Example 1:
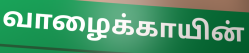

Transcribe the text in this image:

வாழைக்காயின்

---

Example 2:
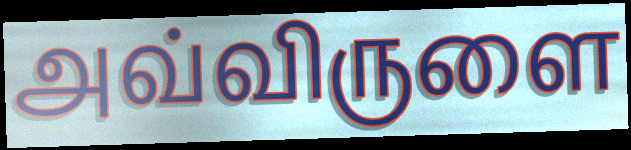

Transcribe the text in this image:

அவ்விருளை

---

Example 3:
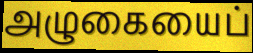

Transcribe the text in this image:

அழுகையைப்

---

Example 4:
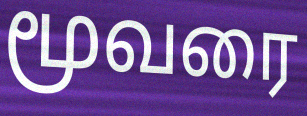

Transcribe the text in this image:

மூவரை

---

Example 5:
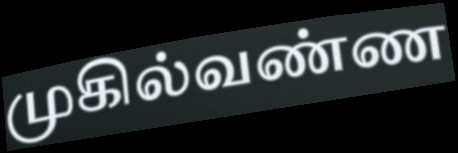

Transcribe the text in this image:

முகில்வண்ண